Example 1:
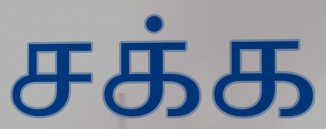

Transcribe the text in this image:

சக்க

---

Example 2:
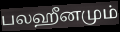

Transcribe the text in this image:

பலஹீனமும்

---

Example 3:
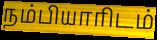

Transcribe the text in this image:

நம்பியாரிடம்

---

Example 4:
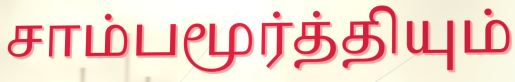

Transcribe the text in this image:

சாம்பமூர்த்தியும்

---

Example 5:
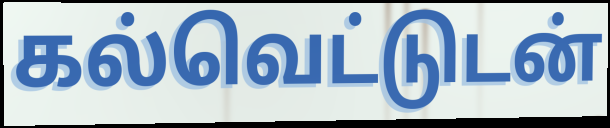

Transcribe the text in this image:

கல்வெட்டுடன்